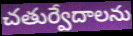
చతుర్వేదాలను